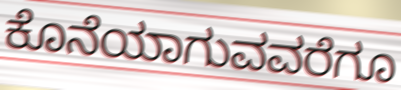
ಕೊನೆಯಾಗುವವರೆಗೂ